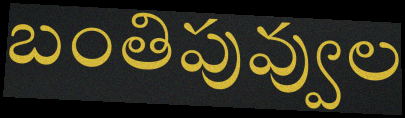
బంతిపువ్వుల